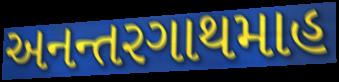
અનન્તરગાથમાહ